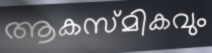
ആകസ്മികവും